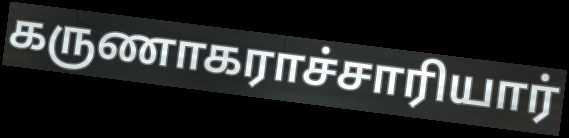
கருணாகராச்சாரியார்